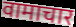
वामाचार